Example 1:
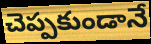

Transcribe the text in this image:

చెప్పకుండానే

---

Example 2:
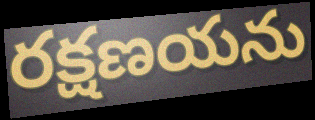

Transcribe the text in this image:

రక్షణయను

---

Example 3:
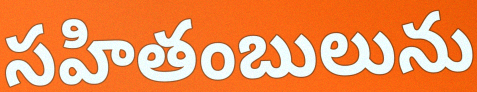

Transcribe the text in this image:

సహితంబులును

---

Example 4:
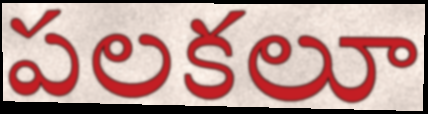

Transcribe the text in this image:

పలకలూ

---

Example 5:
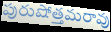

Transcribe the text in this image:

పురుషోత్తమరావు